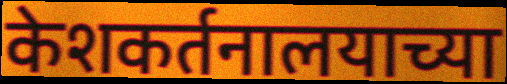
केशकर्तनालयाच्या